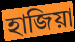
হাজিয়া